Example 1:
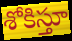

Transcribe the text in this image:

శోకిస్తూ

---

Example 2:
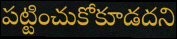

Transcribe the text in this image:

పట్టించుకోకూడదని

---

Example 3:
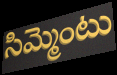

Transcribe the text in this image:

సిమ్మెంటు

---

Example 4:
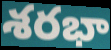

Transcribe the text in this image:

శరభా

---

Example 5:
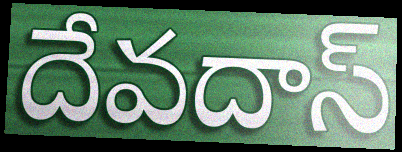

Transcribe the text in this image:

దేవదాస్